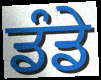
ਡੰਡੇ